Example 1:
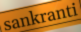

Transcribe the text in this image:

sankranti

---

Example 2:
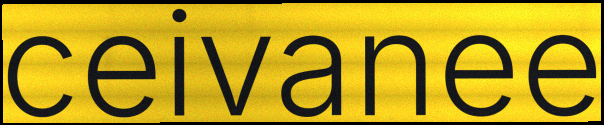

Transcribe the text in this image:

ceivanee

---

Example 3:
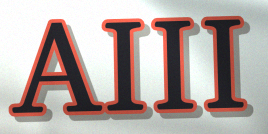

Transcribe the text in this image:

AIII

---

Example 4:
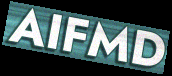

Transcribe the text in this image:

AIFMD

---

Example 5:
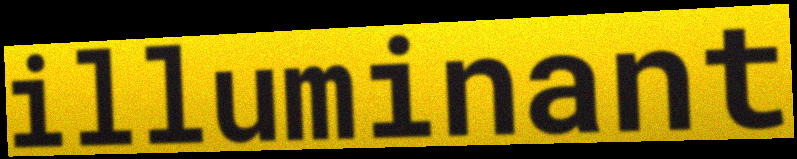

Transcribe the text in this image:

illuminant